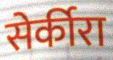
सेर्कीरा